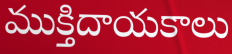
ముక్తిదాయకాలు